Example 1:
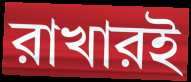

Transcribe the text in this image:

রাখারই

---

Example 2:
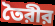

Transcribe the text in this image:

তৈরীর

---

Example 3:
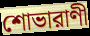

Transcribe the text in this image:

শোভারাণী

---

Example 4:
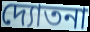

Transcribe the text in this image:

দ্যোতনা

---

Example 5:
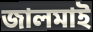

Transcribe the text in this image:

জালমাই